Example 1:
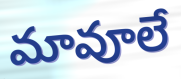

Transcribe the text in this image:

మావూలే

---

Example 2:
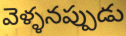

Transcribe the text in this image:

వెళ్ళనప్పుడు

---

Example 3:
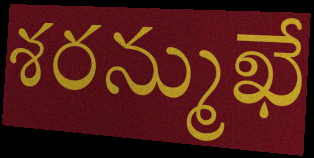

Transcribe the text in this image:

శరన్ముఖే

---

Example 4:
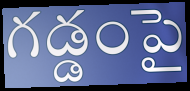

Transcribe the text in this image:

గడ్డంపై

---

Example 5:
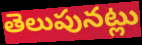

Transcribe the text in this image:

తెలుపునట్లు